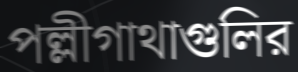
পল্লীগাথাগুলির